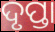
ଦୃପ୍ତା